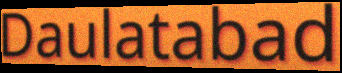
Daulatabad